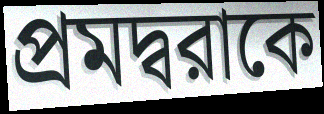
প্রমদ্বরাকে